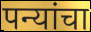
पन्यांचा